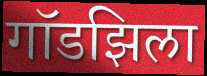
गॉडझिला